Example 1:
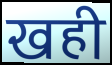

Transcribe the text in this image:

खही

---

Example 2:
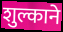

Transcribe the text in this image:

शुल्काने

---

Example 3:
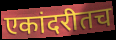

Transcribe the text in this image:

एकांदरीतच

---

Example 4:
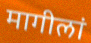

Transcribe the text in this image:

मागीलां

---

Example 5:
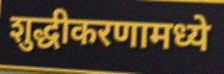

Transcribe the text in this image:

शुद्धीकरणामध्ये